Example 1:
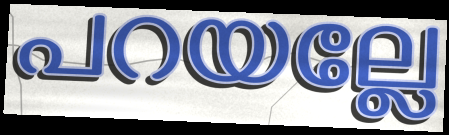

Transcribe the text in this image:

പറയല്ലേ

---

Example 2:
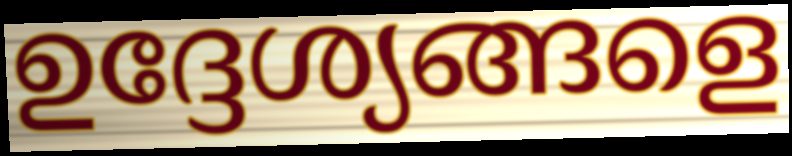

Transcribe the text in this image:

ഉദ്ദേശ്യങ്ങളെ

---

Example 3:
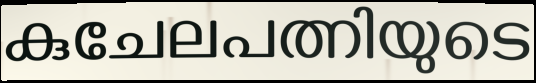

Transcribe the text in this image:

കുചേലപത്നിയുടെ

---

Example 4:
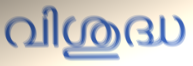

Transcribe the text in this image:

വിശുദ്ധ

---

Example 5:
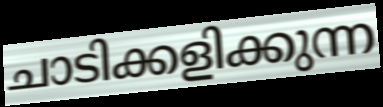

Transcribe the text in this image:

ചാടിക്കളിക്കുന്ന